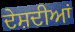
ਦੇਸ਼ਦੀਆਂ